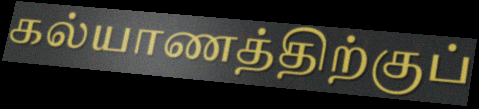
கல்யாணத்திற்குப்